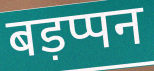
बड़प्पन